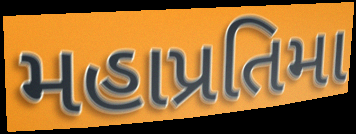
મહાપ્રતિમા